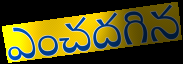
ఎంచదగిన